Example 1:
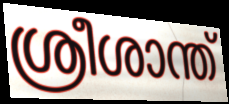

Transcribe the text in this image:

ശ്രീശാന്ത്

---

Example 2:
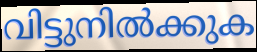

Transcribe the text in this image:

വിട്ടുനിൽക്കുക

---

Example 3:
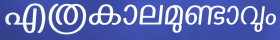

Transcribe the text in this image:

എത്രകാലമുണ്ടാവും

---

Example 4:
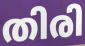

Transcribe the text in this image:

തിരി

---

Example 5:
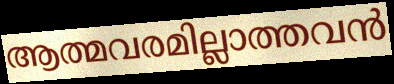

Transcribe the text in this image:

ആത്മവരമില്ലാത്തവൻ